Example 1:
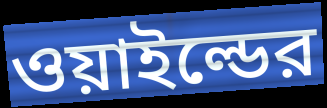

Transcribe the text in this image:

ওয়াইল্ডের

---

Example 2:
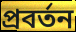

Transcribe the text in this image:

প্রবর্তন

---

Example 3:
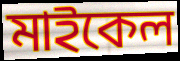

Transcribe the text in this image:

মাইকেল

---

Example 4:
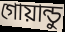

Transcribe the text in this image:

গোয়ান্ডু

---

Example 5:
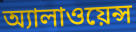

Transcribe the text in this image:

অ্যালাওয়েন্স